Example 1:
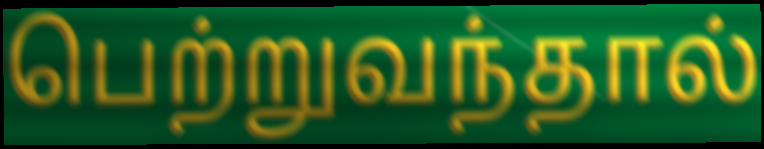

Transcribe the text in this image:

பெற்றுவந்தால்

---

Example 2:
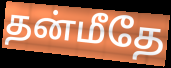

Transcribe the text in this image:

தன்மீதே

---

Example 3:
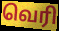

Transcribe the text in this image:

வெரி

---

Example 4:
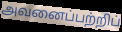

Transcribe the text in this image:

அவனைப்பற்றிப்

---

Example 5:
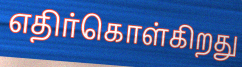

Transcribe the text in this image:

எதிர்கொள்கிறது